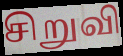
சிறுவி